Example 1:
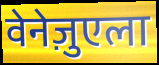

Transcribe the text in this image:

वेनेज़ुएला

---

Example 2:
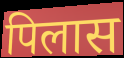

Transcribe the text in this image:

पिलास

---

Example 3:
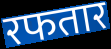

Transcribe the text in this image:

रफतार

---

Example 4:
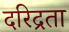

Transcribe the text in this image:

दरिद्रता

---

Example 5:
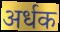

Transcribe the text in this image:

अर्धक